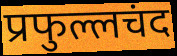
प्रफुल्लचंद